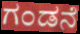
ಗಂಡನೆ